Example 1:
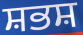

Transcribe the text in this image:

ਸ਼ਭਸ਼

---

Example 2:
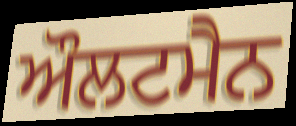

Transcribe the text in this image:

ਔਲਟਮੈਨ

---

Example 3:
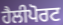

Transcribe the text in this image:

ਹੈਲੀਪੋਰਟ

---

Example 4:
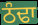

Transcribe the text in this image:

ਠੰਢਾ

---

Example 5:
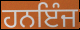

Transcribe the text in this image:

ਹਨਇੰਜ